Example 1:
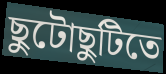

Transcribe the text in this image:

ছুটোছুটিতে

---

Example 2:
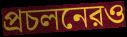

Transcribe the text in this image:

প্রচলনেরও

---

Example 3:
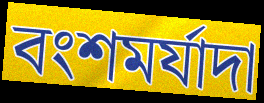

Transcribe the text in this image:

বংশমর্যাদা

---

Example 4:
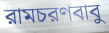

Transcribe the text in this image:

রামচরণবাবু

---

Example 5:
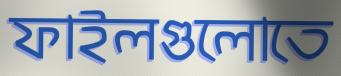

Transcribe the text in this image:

ফাইলগুলোতে